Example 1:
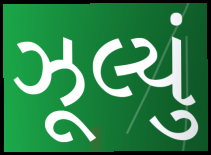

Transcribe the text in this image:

ઝૂલ્યું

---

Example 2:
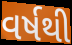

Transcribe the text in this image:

વર્ષથી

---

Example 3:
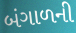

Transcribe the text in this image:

બંગાળની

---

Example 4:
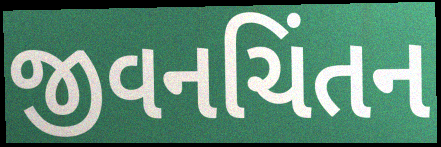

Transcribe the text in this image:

જીવનચિંતન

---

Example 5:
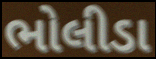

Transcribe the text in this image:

ભોલીડા